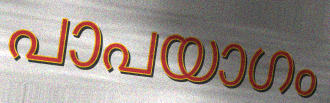
പാപയാഗം